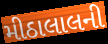
મીઠાલાલની